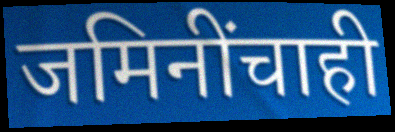
जमिनींचाही